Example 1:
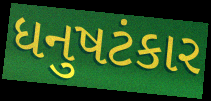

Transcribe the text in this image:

ધનુષટંકાર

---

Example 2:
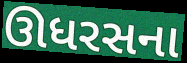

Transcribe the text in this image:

ઊધરસના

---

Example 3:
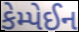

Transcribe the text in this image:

કેમ્પેઈન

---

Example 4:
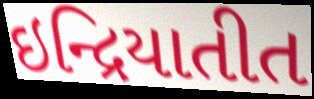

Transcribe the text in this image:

ઇન્દ્રિયાતીત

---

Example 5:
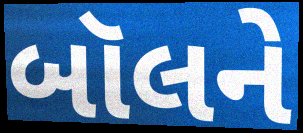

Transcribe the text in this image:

બૉલને